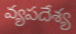
వ్యపదేశ్య